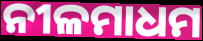
ନୀଳମାଧମ